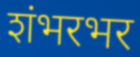
शंभरभर